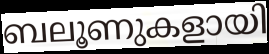
ബലൂണുകളായി